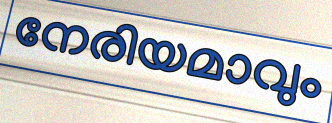
നേരിയമാവും